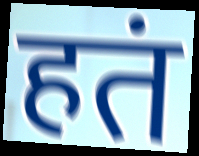
हतं